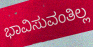
ಭಾವಿಸುವಂತಿಲ್ಲ